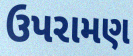
ઉપરામણ